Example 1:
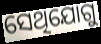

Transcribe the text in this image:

ସେଥିଯୋଗୁ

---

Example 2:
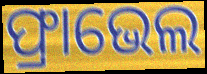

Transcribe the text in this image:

ଫ୍ରାଭେଲ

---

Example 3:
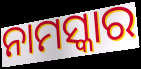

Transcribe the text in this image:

ନାମସ୍କାର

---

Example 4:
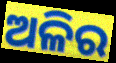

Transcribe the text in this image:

ଅଳିର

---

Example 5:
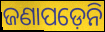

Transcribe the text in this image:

ଜଣାପଡ଼େନି